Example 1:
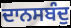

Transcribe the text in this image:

ਦਾਨਸਬੰਦੁ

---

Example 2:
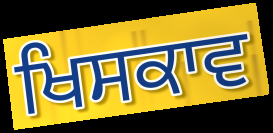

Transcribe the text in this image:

ਖਿਸਕਾਵ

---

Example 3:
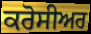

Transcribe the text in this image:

ਕਰੋਸੀਅਰ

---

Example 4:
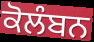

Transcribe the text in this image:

ਕੋਲੰਬਨ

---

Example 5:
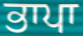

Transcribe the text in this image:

ਭਾਪਾ